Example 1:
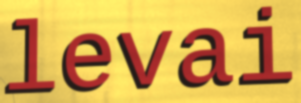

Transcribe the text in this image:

levai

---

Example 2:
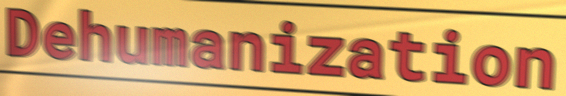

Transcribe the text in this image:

Dehumanization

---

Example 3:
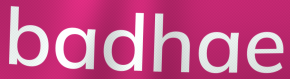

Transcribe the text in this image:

badhae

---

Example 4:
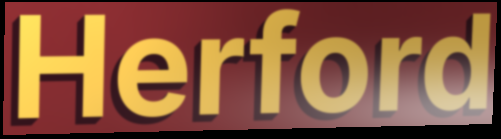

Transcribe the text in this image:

Herford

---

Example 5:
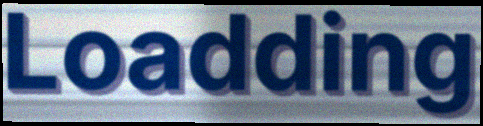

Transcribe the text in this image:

Loadding